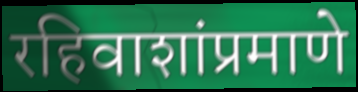
रहिवाशांप्रमाणे